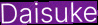
Daisuke